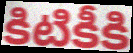
కిటికీకి